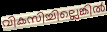
വികസിച്ചില്ലെങ്കിൽ